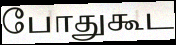
போதுகூட